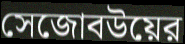
সেজোবউয়ের